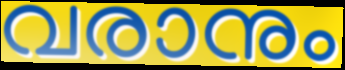
വരാനും